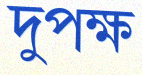
দুপক্ষ